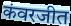
कंवरजीत